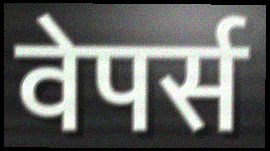
वेपर्स